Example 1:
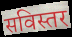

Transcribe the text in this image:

सविस्तर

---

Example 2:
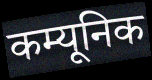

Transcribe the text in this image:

कम्यूनिक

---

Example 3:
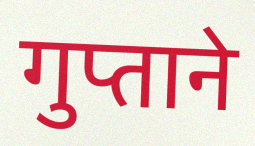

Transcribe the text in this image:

गुप्ताने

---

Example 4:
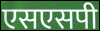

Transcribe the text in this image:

एसएसपी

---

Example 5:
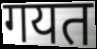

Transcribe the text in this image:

गयत